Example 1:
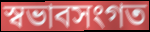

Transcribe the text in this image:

স্বভাবসংগত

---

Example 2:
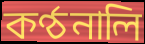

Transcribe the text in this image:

কণ্ঠনালি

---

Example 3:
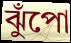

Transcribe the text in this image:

ঝুঁপো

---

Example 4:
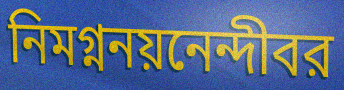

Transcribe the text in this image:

নিমগ্ননয়নেন্দীবর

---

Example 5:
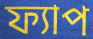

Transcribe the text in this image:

ফ্যাপ